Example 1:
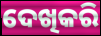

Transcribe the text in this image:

ଦେଖିକରି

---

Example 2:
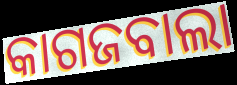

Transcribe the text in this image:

କାଗଜବାଲା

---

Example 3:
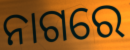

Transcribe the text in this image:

ନାଗରେ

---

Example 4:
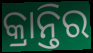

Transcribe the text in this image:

କ୍ରାନ୍ତିର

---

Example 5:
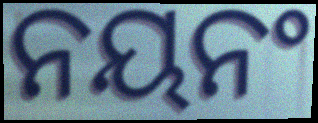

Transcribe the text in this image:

ନୟନଂ